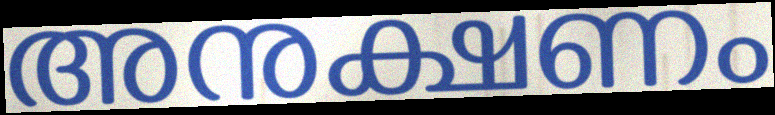
അനുക്ഷണം